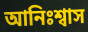
আনিঃশ্বাস